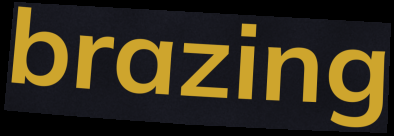
brazing